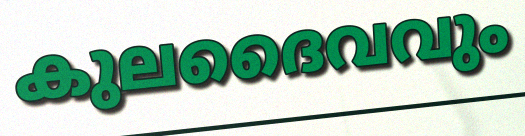
കുലദൈവവും